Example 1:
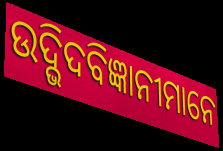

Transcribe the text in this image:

ଉଦ୍ଭିଦବିଜ୍ଞାନୀମାନେ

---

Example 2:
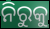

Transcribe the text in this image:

ନିରୁକୁ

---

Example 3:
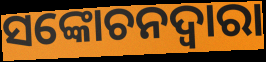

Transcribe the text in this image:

ସଙ୍କୋଚନଦ୍ୱାରା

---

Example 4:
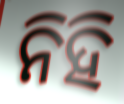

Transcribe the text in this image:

ନିହି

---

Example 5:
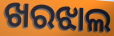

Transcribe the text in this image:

ଖରଝାଲ